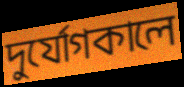
দুর্যোগকালে